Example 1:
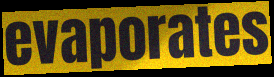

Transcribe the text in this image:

evaporates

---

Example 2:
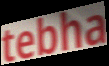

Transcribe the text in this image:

tebha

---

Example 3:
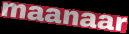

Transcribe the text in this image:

maanaar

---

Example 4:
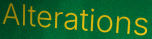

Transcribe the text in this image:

Alterations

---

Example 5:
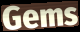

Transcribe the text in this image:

Gems